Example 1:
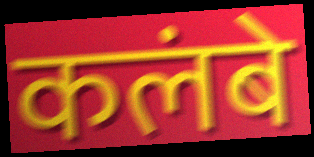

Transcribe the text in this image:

कलंबे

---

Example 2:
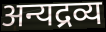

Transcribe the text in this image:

अन्यद्रव्य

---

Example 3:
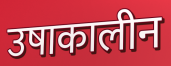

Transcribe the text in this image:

उषाकालीन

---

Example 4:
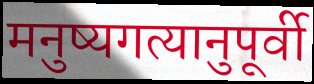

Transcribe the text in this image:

मनुष्यगत्यानुपूर्वी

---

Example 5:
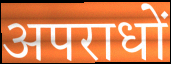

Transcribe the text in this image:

अपराधों